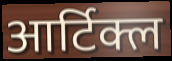
आर्टिक्ल